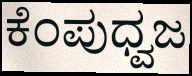
ಕೆಂಪುಧ್ವಜ